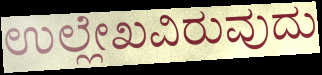
ಉಲ್ಲೇಖವಿರುವುದು